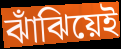
ঝাঁঝিয়েই